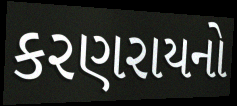
કરણરાયનો